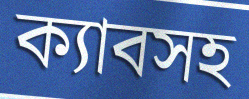
ক্যাবসহ